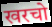
खरचो